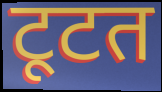
टूटत